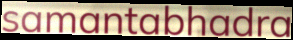
samantabhadra